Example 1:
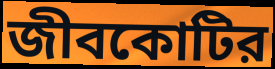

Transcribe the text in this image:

জীবকোটির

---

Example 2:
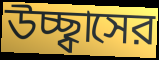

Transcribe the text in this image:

উচ্ছ্বাসের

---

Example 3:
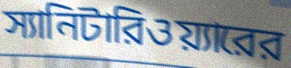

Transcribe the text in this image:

স্যানিটারিওয়্যারের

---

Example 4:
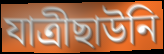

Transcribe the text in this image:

যাত্রীছাউনি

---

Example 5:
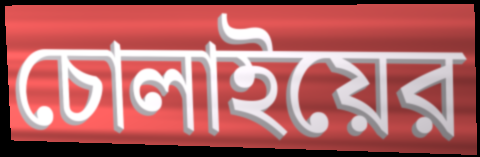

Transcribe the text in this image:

চোলাইয়ের